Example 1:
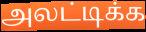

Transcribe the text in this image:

அலட்டிக்க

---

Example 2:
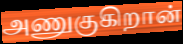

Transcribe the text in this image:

அணுகுகிறான்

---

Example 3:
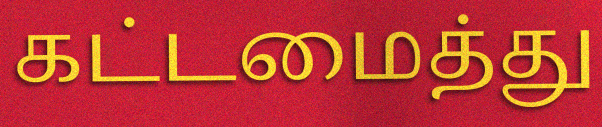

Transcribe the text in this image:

கட்டமைத்து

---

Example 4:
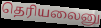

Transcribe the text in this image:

தெரியலைனு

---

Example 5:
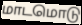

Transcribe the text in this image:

மாடமொடு